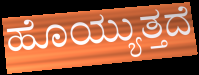
ಹೊಯ್ಯುತ್ತದೆ